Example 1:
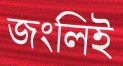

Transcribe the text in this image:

জংলিই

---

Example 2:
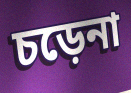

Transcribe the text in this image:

চড়েনা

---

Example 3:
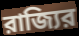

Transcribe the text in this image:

রাজ্যির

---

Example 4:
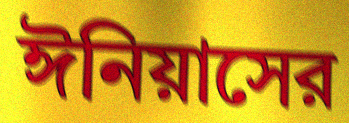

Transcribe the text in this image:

ঈনিয়াসের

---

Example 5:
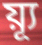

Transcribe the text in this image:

য়্যূ